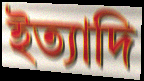
ইত্য়াদি